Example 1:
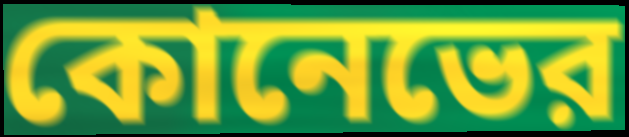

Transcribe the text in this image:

কোনেভের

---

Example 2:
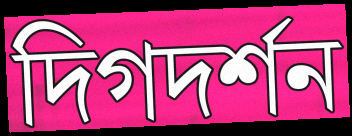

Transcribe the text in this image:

দিগদর্শন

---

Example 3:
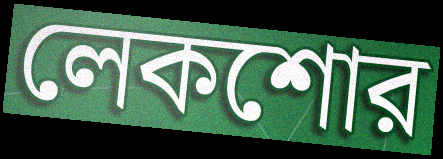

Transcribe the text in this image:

লেকশোর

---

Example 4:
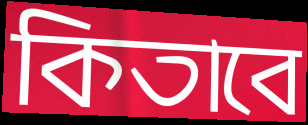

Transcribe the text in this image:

কিতাবে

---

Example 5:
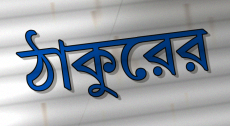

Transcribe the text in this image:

ঠাকুরের